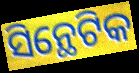
ସିନ୍ଥେଟିକ